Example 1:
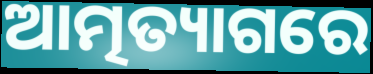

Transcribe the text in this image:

ଆତ୍ମତ୍ୟାଗରେ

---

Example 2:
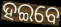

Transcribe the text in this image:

ହଇବେ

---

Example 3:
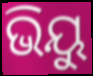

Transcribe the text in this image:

ଭିୟୁ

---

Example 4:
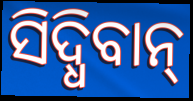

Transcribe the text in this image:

ସିଦ୍ଧିବାନ୍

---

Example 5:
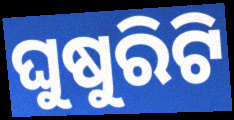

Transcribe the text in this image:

ଘୁଷୁରିଟି